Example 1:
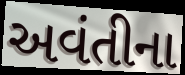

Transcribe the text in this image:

અવંતીના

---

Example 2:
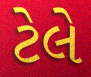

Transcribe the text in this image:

ટેલે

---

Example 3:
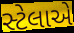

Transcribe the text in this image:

સ્ટેલાએ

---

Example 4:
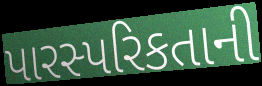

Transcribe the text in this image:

પારસ્પરિકતાની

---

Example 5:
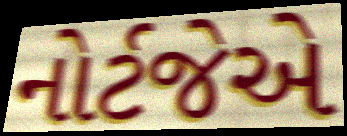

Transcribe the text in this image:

નોર્ટજેએ